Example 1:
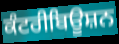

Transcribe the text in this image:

ਕੰਟਰੀਬਿਊਸ਼ਨ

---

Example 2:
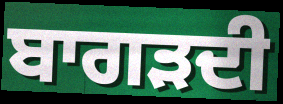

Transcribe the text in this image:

ਬਾਗੜਦੀ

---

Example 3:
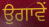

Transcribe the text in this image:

ਉਗਾਵੇਂ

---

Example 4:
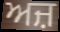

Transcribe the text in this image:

ਅਜ਼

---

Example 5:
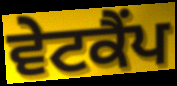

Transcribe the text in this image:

ਵੇਟਕੈਂਪ